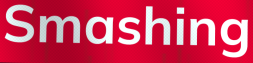
Smashing